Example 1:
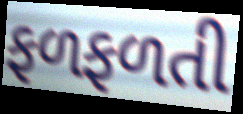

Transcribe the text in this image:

ફળફળતી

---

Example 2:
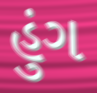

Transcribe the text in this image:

હુંગ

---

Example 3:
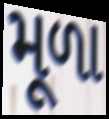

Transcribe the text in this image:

મૂળા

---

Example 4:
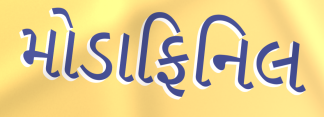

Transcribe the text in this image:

મોડાફિનિલ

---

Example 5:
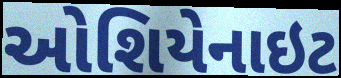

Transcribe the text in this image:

ઓશિયેનાઇટ